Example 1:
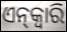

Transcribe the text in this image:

ଏନ୍‌କ୍ୱାରି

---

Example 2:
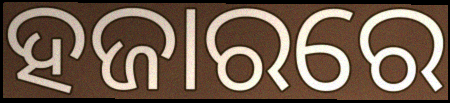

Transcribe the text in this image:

ହଜାରରେ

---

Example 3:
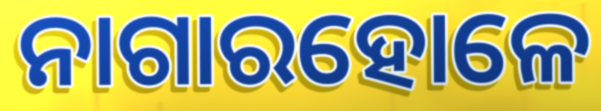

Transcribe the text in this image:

ନାଗାରହୋଳେ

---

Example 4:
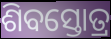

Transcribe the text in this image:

ଶିବସ୍ତୋତ୍ର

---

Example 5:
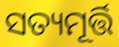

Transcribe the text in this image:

ସତ୍ୟମୂର୍ତ୍ତି